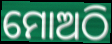
ମୋଅଠି